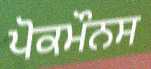
ਪੋਕਮੌਨਸ